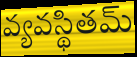
వ్యవస్థితమ్